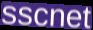
sscnet